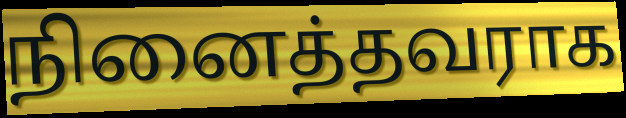
நினைத்தவராக